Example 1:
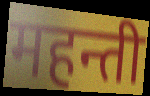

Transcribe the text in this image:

महन्ती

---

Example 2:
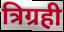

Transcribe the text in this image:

त्रिग्रही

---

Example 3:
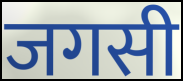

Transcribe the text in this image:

जगसी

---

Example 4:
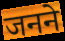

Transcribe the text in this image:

जनने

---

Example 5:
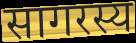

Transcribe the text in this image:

सागरस्य